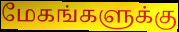
மேகங்களுக்கு